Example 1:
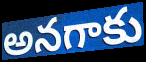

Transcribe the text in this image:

అనగాకు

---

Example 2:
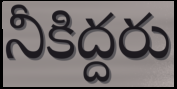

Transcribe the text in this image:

నీకిద్దరు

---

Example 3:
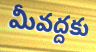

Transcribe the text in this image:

మీవద్దకు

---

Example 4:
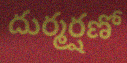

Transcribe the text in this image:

దుర్మర్షణో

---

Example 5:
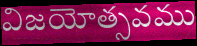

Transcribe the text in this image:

విజయోత్సవము